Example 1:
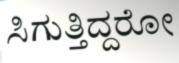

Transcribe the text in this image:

ಸಿಗುತ್ತಿದ್ದರೋ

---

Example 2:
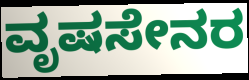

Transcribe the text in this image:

ವೃಷಸೇನರ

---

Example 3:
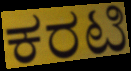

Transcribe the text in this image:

ಕರಟಿ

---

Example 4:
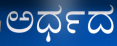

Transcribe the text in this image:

ಅರ್ಧದ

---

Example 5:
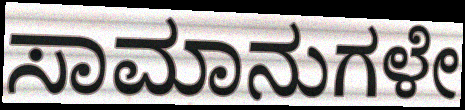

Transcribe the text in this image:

ಸಾಮಾನುಗಳೇ